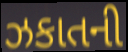
ઝકાતની